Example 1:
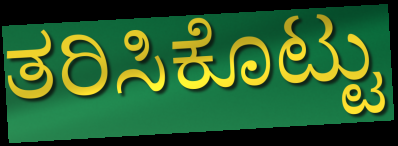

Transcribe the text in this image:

ತರಿಸಿಕೊಟ್ಟು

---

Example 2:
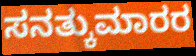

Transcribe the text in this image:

ಸನತ್ಕುಮಾರರ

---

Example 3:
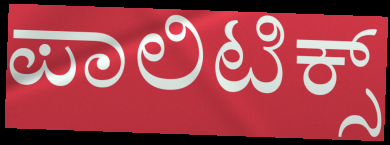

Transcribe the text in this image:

ಪಾಲಿಟಿಕ್ಸ್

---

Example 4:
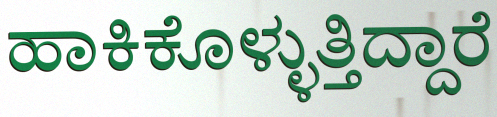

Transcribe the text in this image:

ಹಾಕಿಕೊಳ್ಳುತ್ತಿದ್ದಾರೆ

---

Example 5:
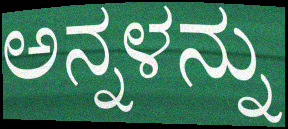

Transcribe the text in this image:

ಅನ್ನಳನ್ನು